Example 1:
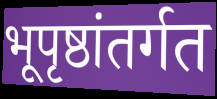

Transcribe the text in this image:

भूपृष्ठांतर्गत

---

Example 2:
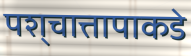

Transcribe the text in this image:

पश्चात्तापाकडे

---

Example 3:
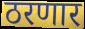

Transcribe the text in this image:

ठरणार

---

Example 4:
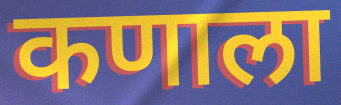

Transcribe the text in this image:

कणाला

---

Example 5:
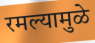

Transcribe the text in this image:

रमल्यामुळे